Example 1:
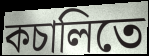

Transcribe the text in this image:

কচালিতে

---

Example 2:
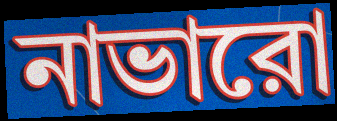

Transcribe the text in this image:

নাভারো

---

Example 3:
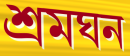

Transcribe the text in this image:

শ্রমঘন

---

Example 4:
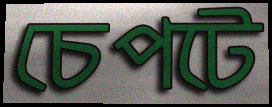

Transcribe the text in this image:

চেপটে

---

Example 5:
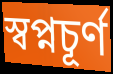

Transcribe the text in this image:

স্বপ্নচূর্ণ